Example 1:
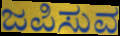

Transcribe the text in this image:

ಜಪಿಸುವ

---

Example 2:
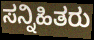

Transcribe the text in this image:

ಸನ್ನಿಹಿತರು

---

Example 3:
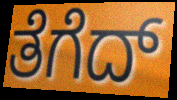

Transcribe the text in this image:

ತೆಗೆದ್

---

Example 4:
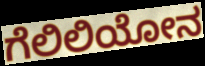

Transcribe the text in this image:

ಗೆಲಿಲಿಯೋನ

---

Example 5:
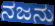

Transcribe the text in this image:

ನಜನು